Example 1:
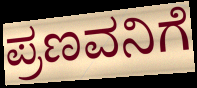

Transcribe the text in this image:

ಪ್ರಣವನಿಗೆ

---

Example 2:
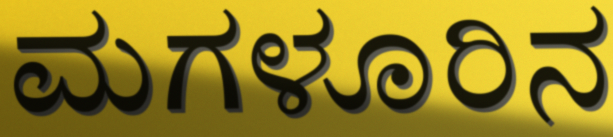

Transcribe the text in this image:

ಮಗಳೂರಿನ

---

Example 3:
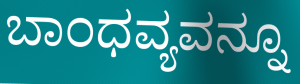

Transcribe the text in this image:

ಬಾಂಧವ್ಯವನ್ನೂ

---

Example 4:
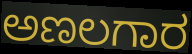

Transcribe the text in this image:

ಅಣಲಗಾರ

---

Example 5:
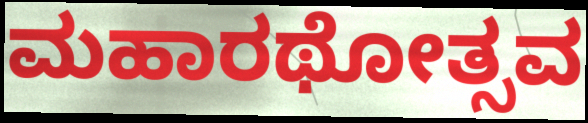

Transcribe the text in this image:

ಮಹಾರಥೋತ್ಸವ